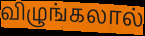
விழுங்கலால்